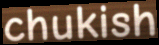
chukish